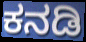
ಕನಡಿ